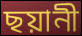
ছয়ানী